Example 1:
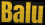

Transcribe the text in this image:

Balu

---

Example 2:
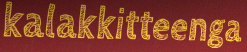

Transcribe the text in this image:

kalakkitteenga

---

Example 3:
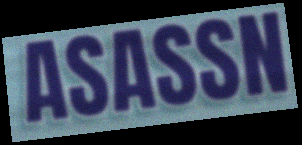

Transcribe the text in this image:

ASASSN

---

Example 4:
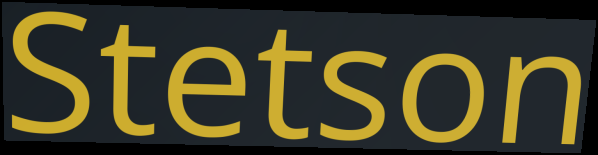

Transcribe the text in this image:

Stetson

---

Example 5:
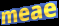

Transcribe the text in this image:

meae